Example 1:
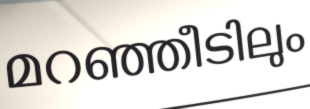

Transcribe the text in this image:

മറഞ്ഞീടിലും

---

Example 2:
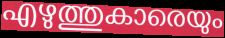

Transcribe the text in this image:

എഴുത്തുകാരെയും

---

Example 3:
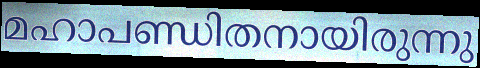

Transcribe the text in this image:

മഹാപണ്ഡിതനായിരുന്നു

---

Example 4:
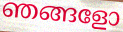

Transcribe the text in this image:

ഞങ്ങളോ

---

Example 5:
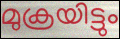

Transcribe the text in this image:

മുക്രയിട്ടും